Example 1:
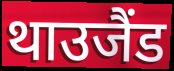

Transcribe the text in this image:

थाउजैंड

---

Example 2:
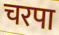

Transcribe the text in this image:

चरपा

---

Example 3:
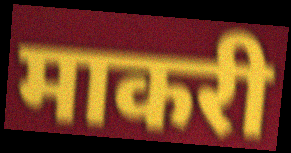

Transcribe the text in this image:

माकरी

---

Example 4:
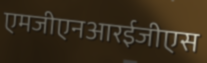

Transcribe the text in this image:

एमजीएनआरईजीएस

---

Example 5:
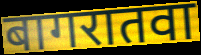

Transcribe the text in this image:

बागरातवा